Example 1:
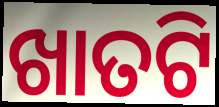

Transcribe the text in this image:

ଖାତଟି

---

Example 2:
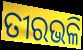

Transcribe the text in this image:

ତୀରଭଳି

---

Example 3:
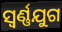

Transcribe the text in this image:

ସ୍ଵର୍ଣ୍ଣଯୁଗ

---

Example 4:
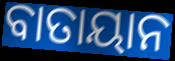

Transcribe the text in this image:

ବାତାୟାନ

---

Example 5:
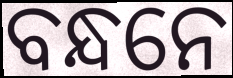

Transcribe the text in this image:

ବନ୍ଧନେ